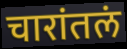
चारांतलं